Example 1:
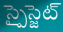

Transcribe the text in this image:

స్పైస్జెట్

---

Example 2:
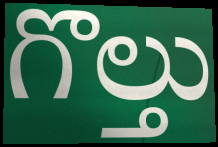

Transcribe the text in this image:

గొల్తు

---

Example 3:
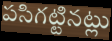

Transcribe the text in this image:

పసిగట్టినట్లు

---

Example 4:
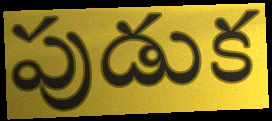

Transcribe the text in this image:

పుడుక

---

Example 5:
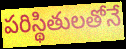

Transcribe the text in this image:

పరిస్థితులతోనే